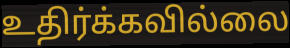
உதிர்க்கவில்லை